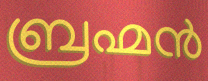
ബ്രഹ്മൻ